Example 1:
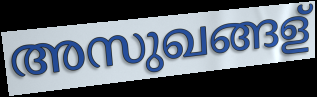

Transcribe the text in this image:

അസുഖങ്ങള്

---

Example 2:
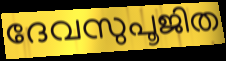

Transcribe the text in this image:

ദേവസുപൂജിത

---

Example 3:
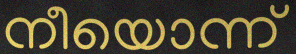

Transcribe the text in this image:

നീയൊന്ന്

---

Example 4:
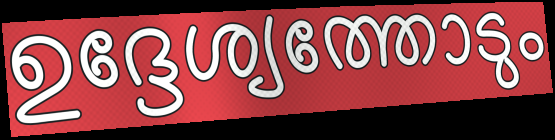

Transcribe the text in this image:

ഉദ്ദേശ്യത്തോടും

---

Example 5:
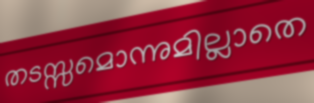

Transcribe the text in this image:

തടസ്സമൊന്നുമില്ലാതെ